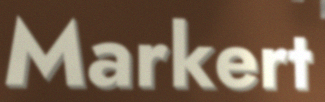
Markert